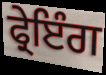
ਫ੍ਰੇਇੰਗ